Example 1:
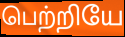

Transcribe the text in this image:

பெற்றியே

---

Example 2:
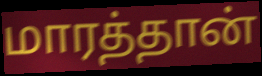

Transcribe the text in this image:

மாரத்தான்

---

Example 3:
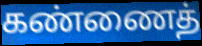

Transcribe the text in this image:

கண்ணைத்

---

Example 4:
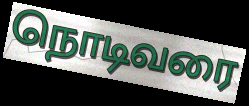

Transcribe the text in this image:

நொடிவரை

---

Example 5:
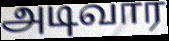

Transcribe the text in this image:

அடிவார